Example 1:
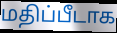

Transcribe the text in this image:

மதிப்பீடாக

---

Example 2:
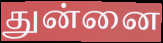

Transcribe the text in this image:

துன்னை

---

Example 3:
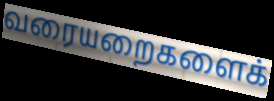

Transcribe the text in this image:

வரையறைகளைக்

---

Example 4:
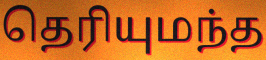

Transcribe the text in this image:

தெரியுமந்த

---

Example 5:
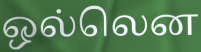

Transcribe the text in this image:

ஒல்லென